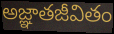
అజ్ఞాతజీవితం